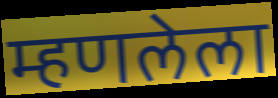
म्हणलेला